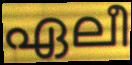
ഏലീ